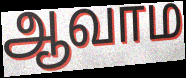
ஆவாம